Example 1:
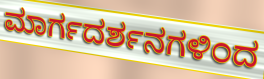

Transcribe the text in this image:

ಮಾರ್ಗದರ್ಶನಗಳಿಂದ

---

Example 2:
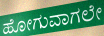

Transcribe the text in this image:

ಹೋಗುವಾಗಲೇ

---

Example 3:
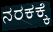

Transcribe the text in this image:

ನರಕಕ್ಕೆ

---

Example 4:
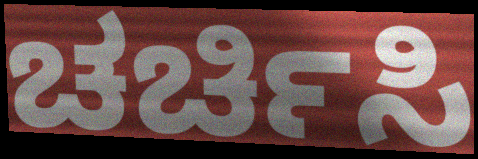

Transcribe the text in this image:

ಚರ್ಚಿಸಿ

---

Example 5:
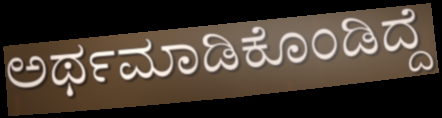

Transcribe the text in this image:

ಅರ್ಥಮಾಡಿಕೊಂಡಿದ್ದೆ